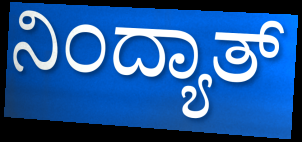
ನಿಂದ್ಯಾತ್